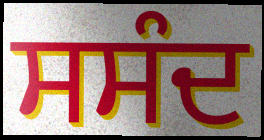
ਸਸੰਦ